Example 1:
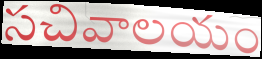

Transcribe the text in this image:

సచివాలయం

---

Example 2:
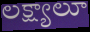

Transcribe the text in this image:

లక్ష్యాలూ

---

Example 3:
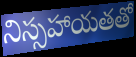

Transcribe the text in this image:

నిస్సహాయతతో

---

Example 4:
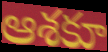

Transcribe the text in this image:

ఆశకూ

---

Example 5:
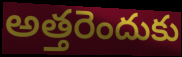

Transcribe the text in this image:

అత్తరెందుకు